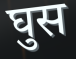
घुस